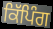
ਕਿੱਪਿੰਗ